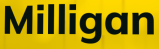
Milligan